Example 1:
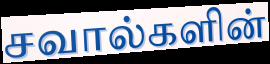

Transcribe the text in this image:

சவால்களின்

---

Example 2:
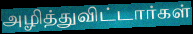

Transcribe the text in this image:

அழித்துவிட்டார்கள்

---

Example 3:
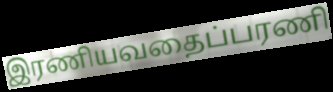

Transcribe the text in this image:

இரணியவதைப்பரணி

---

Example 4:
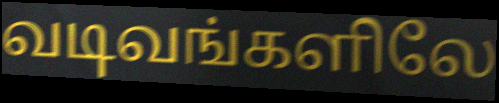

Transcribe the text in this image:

வடிவங்களிலே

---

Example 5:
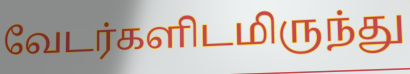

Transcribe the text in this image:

வேடர்களிடமிருந்து